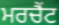
ਮਰਚੈਂਟ